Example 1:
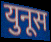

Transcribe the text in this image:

युनूस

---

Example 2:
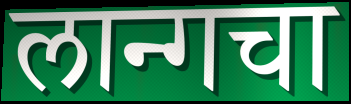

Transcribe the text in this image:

लान्गचा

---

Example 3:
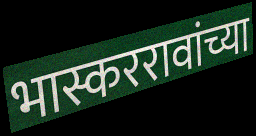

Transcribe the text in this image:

भास्कररावांच्या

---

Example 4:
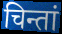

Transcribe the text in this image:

चिन्तां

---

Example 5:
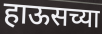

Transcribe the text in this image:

हाऊसच्या